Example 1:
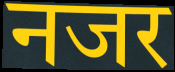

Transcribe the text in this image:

नजर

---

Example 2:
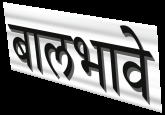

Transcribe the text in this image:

बालभावे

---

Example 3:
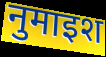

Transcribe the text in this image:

नुमाइश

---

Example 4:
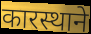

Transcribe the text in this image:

कारस्थाने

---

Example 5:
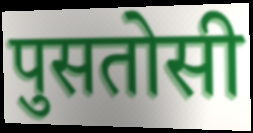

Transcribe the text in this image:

पुसतोसी